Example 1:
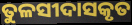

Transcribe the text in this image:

ତୁଳସୀଦାସକୃତ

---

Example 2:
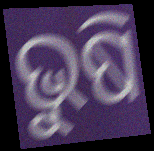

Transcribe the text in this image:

ଭୁଷି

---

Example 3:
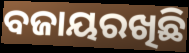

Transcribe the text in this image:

ବଜାୟରଖିଛି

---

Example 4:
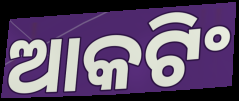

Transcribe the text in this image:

ଆକଟିଂ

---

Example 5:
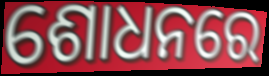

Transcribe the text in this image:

ଶୋଧନରେ